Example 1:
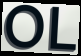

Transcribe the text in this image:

OL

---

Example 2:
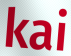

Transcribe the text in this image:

kai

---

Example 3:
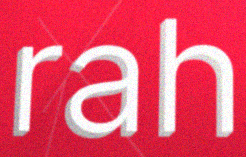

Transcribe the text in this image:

rah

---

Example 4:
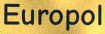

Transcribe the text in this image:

Europol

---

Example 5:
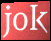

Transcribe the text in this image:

jok